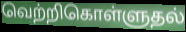
வெற்றிகொள்ளுதல்